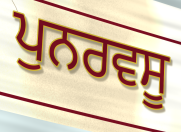
ਪੁਨਰਵਸੂ